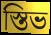
স্তিভ